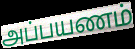
அப்பயணம்